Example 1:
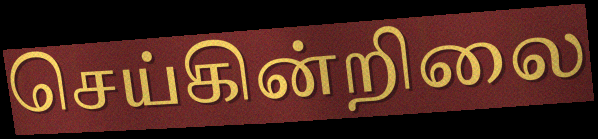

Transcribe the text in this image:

செய்கின்றிலை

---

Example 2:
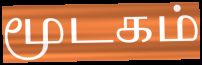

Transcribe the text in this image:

மூடகம்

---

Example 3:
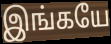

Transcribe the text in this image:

இங்கயே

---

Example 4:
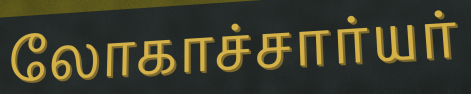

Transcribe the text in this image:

லோகாச்சார்யர்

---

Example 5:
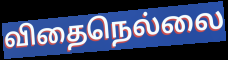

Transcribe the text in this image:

விதைநெல்லை